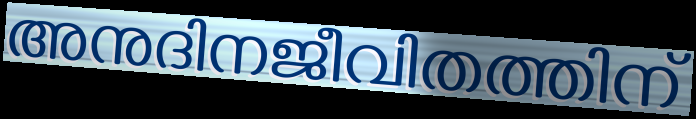
അനുദിനജീവിതത്തിന്